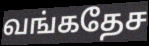
வங்கதேச